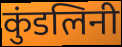
कुंडलिनी